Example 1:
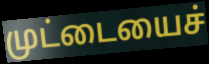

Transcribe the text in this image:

முட்டையைச்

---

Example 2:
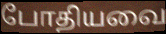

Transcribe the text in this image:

போதியவை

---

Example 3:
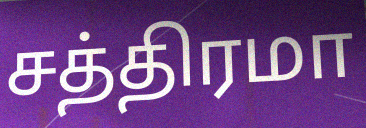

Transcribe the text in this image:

சத்திரமா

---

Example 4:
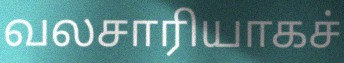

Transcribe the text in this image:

வலசாரியாகச்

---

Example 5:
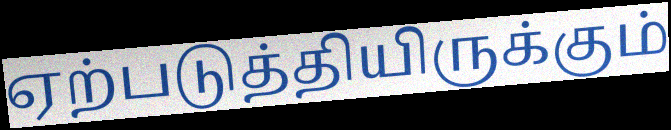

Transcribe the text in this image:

ஏற்படுத்தியிருக்கும்